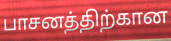
பாசனத்திற்கான